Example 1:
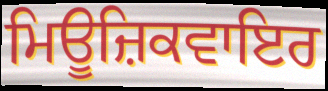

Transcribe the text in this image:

ਮਿਊਜ਼ਿਕਵਾਇਰ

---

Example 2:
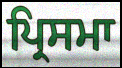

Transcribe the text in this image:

ਪ੍ਰਿਸਮਾ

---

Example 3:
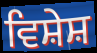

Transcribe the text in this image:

ਵਿਸ਼ੇਸ਼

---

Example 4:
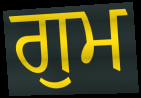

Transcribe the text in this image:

ਗੁਮ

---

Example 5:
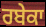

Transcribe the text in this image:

ਰਬੇਕਾ